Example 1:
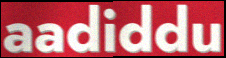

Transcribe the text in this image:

aadiddu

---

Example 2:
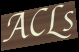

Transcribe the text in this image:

ACLs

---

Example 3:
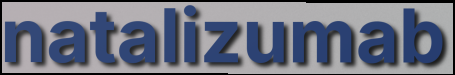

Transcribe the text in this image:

natalizumab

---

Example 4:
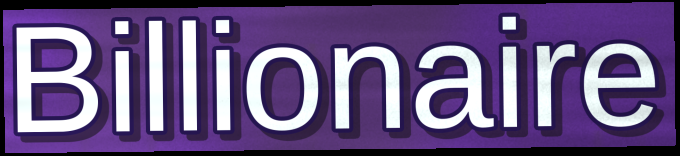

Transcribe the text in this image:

Billionaire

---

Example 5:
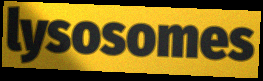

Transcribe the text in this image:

lysosomes